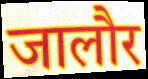
जालौर